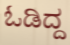
ಓಡಿದ್ದ